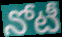
నోటీ